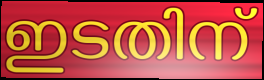
ഇടതിന്